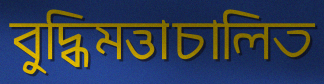
বুদ্ধিমত্তাচালিত